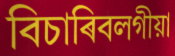
বিচাৰিবলগীয়া